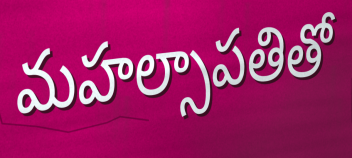
మహల్సాపతితో